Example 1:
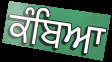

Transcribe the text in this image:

ਕੰਬਿਆ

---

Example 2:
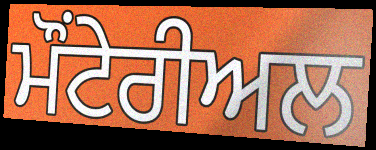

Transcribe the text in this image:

ਮੌਂਟੇਰੀਅਲ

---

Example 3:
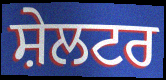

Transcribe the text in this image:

ਸ਼ੇਲਟਰ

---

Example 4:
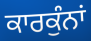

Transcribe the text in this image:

ਕਾਰਕੁੰਨਾਂ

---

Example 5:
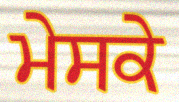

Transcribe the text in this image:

ਮੇਸਕੇ